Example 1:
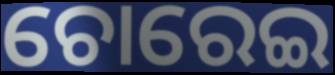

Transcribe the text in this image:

ଚୋରେଇ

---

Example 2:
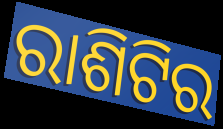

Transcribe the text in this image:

ରାଶିଟିର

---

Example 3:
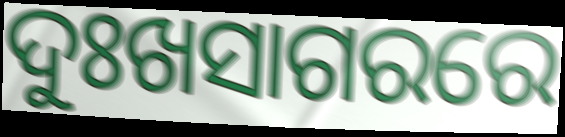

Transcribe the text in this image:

ଦୁଃଖସାଗରରେ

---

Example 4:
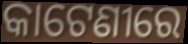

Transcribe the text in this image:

କାଟେଣୀରେ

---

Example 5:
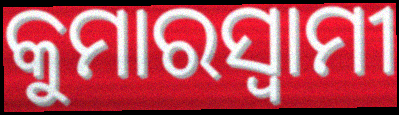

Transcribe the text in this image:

କୁମାରସ୍ୱାମୀ